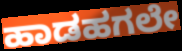
ಹಾಡಹಗಲೇ